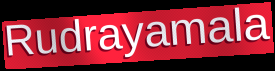
Rudrayamala